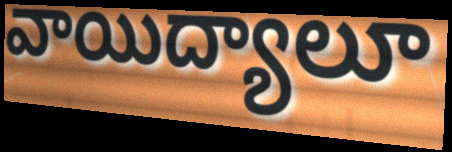
వాయిద్యాలూ